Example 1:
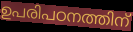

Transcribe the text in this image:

ഉപരിപഠനത്തിന്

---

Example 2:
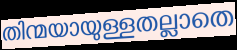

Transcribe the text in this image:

തിന്മയായുള്ളതല്ലാതെ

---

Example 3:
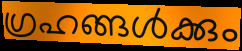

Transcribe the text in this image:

ഗ്രഹങ്ങൾക്കും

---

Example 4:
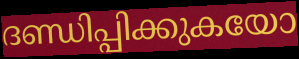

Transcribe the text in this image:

ദണ്ഡിപ്പിക്കുകയോ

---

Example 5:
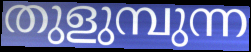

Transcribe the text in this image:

തുളുമ്പുന്ന